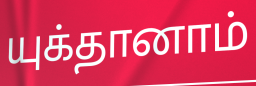
யுக்தானாம்